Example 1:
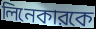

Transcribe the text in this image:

লিনেকারকে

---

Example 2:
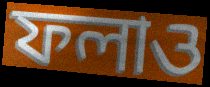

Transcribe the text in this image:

ফলাও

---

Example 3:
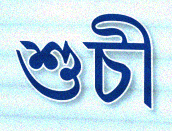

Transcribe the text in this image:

শুচী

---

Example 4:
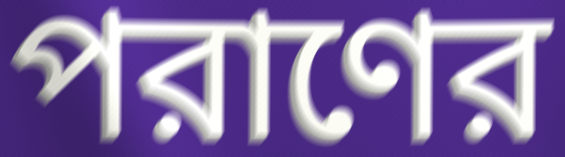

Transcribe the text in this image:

পরাণের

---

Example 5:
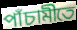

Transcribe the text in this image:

পাঁচামীতে